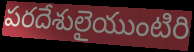
పరదేశులైయుంటిరి